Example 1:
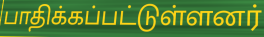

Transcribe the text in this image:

பாதிக்கப்பட்டுள்ளனர்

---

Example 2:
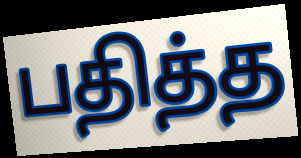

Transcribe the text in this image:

பதித்த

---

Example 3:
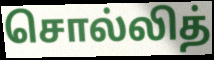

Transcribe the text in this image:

சொல்லித்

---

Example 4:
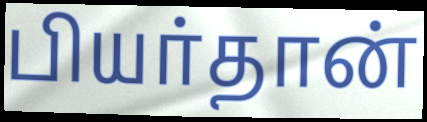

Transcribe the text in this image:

பியர்தான்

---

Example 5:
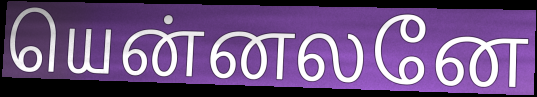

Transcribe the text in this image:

யென்னலனே